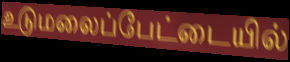
உடுமலைப்பேட்டையில்